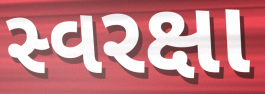
સ્વરક્ષા